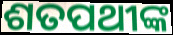
ଶତପଥୀଙ୍କ